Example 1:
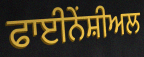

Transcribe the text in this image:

ਫਾਈਨੇਂਸ਼ੀਅਲ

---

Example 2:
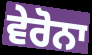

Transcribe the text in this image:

ਵੇਰੋਨਾ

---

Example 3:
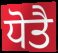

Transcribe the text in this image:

ਧੋਤੈ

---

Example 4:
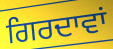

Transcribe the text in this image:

ਗਿਰਦਾਵਾਂ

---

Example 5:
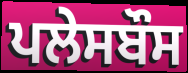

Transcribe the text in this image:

ਪਲੇਸਬੌਸ